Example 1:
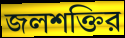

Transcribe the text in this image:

জলশক্তির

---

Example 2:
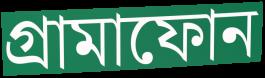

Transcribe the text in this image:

গ্রামাফোন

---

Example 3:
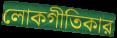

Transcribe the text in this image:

লোকগীতিকার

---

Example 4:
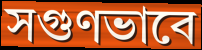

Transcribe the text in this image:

সগুণভাবে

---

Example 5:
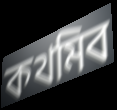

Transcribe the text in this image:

কথমিব